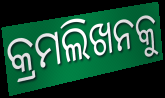
କ୍ରମଲିଖନକୁ